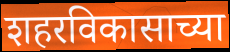
शहरविकासाच्या